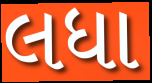
લધા